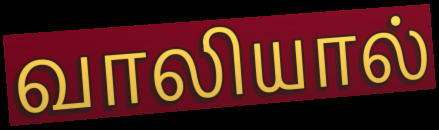
வாலியால்